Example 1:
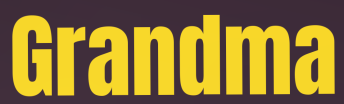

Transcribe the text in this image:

Grandma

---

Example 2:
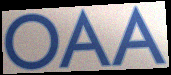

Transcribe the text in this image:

OAA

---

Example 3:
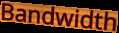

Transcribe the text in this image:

Bandwidth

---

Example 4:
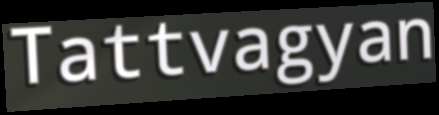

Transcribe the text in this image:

Tattvagyan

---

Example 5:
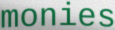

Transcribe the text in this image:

monies